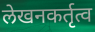
लेखनकर्तृत्व